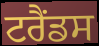
ਟਰੈਂਡਸ